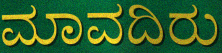
ಮಾವದಿರು